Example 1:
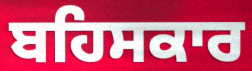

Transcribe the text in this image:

ਬਹਿਸਕਾਰ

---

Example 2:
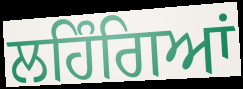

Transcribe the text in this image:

ਲਹਿੰਗਿਆਂ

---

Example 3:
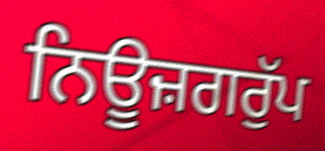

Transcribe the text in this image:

ਨਿਊਜ਼ਗਰੁੱਪ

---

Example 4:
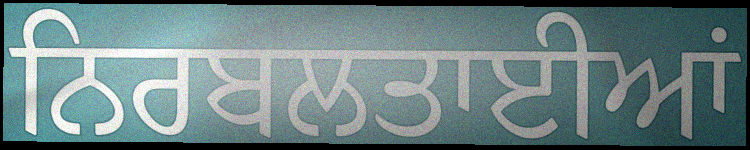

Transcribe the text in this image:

ਨਿਰਬਲਤਾਈਆਂ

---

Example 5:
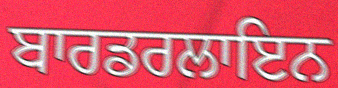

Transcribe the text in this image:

ਬਾਰਡਰਲਾਇਨ